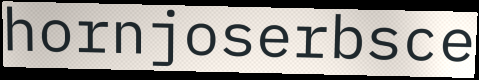
hornjoserbsce